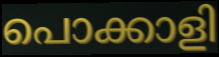
പൊക്കാളി